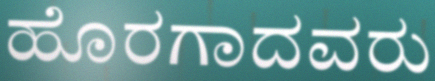
ಹೊರಗಾದವರು